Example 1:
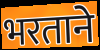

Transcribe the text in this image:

भरताने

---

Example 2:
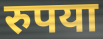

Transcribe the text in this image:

रुपया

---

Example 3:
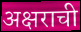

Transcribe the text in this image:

अक्षराची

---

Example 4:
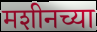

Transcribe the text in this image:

मशीनच्या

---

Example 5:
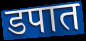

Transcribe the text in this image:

डपात